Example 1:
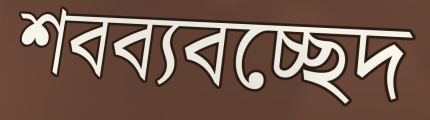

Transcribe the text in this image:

শবব্যবচ্ছেদ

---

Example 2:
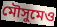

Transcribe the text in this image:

মৌসুমেও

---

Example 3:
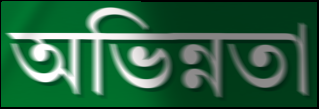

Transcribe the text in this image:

অভিন্নতা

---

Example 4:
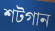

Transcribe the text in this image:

শটগান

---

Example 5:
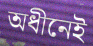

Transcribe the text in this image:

অধীনেই